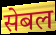
सेबल